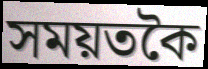
সময়তকৈ